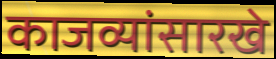
काजव्यांसारखे